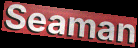
Seaman